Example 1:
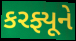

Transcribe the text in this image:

કરફ્યૂને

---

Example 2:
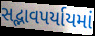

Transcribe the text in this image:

સદ્ભાવપર્યાયમાં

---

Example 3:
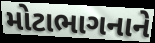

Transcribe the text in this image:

મોટાભાગનાને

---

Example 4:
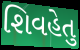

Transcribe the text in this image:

શિવહેતુ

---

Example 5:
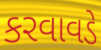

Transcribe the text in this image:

કરવાવડે